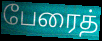
பேரைத்